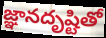
జ్ఞానదృష్టితో